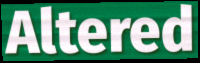
Altered